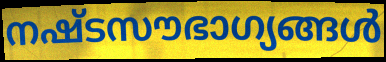
നഷ്ടസൗഭാഗ്യങ്ങൾ